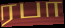
ரபா